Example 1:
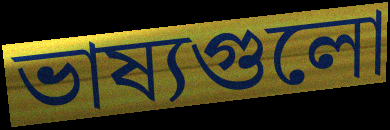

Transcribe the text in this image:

ভাষ্যগুলো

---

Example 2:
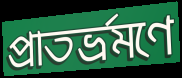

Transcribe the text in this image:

প্রাতর্ভ্রমণে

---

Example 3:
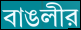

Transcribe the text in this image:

বাঙলীর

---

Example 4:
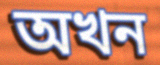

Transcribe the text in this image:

অখন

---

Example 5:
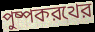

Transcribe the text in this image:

পুষ্পকরথের